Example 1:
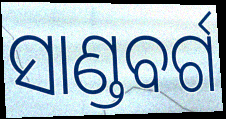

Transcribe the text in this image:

ସାଣ୍ଡବର୍ଗ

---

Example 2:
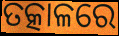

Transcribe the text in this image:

ତତ୍କାଳରେ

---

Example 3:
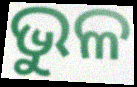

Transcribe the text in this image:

ଭୁଳ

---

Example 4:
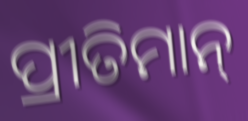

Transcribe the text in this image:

ପ୍ରୀତିମାନ୍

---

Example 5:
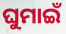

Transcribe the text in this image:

ଘୁମାଇଁ